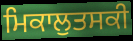
ਮਿਕਾਲੁਤਸਕੀ